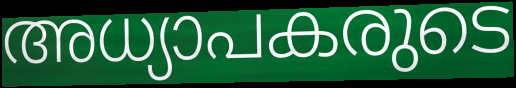
അധ്യാപകരുടെ